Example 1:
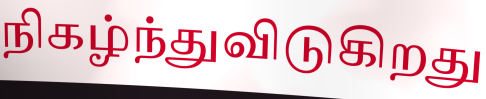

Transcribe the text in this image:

நிகழ்ந்துவிடுகிறது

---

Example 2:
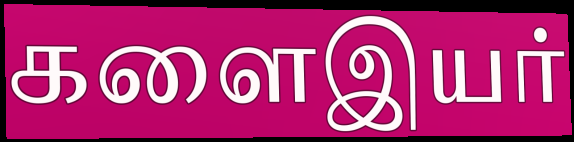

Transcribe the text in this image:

களைஇயர்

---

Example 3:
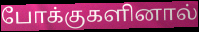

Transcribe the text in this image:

போக்குகளினால்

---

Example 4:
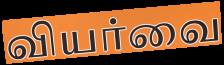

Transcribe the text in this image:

வியர்வை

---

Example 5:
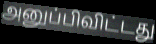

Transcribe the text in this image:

அனுப்பிவிட்டது